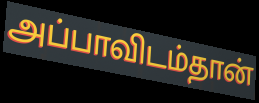
அப்பாவிடம்தான்